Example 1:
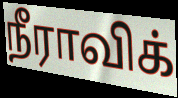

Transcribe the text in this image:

நீராவிக்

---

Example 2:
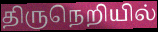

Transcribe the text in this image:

திருநெறியில்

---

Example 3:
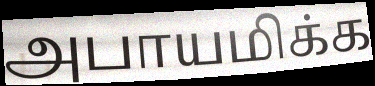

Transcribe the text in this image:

அபாயமிக்க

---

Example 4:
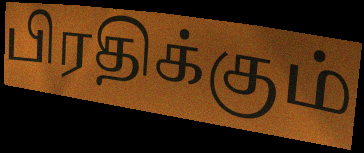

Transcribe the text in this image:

பிரதிக்கும்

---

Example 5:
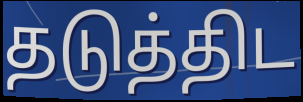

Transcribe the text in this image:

தடுத்திட